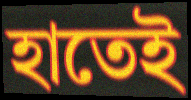
হাতেই